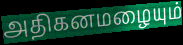
அதிகனமழையும்